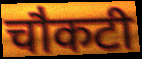
चौकटी